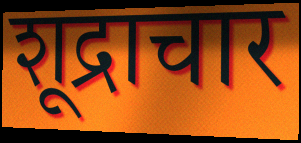
शूद्राचार